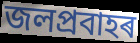
জলপ্ৰবাহৰ